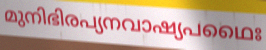
മുനിഭിരപ്യനവാഷ്യപഥൈഃ